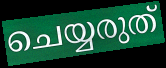
ചെയ്യരുത്